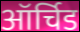
ऑर्चिड